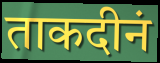
ताकदीनं